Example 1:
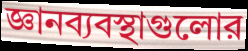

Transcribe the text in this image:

জ্ঞানব্যবস্থাগুলোর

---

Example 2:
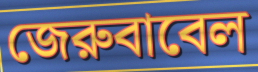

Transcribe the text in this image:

জেরুবাবেল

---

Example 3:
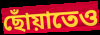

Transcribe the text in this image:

ছোঁয়াতেও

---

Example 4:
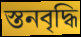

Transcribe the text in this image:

স্তনবৃদ্ধি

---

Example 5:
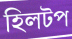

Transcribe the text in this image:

হিলটপ